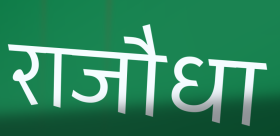
राजौधा